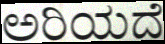
ಅರಿಯದೆ